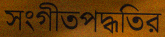
সংগীতপদ্ধতির